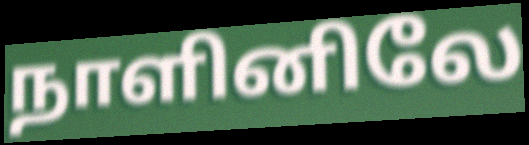
நாளினிலே